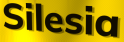
Silesia